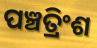
ପଞ୍ଚତ୍ରିଂଶ